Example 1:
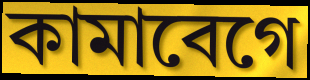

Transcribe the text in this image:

কামাবেগে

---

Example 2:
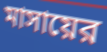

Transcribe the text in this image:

মাসায়ের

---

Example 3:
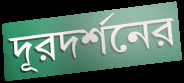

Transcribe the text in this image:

দূরদর্শনের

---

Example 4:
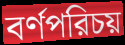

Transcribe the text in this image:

বর্ণপরিচয়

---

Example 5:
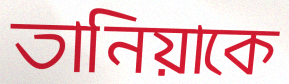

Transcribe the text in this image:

তানিয়াকে